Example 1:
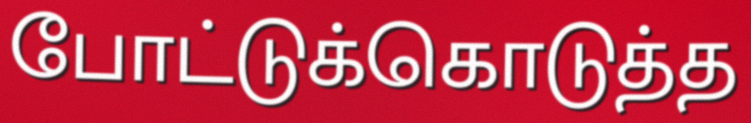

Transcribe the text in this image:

போட்டுக்கொடுத்த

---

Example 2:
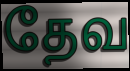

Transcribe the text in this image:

தேவ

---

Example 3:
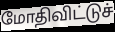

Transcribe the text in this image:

மோதிவிட்டுச்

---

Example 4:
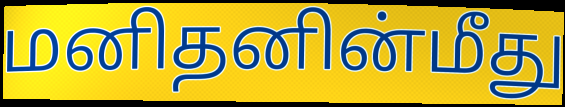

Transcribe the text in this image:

மனிதனின்மீது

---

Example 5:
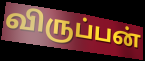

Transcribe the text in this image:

விருப்பன்